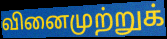
வினைமுற்றுக்